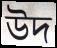
উদ